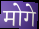
मोगे